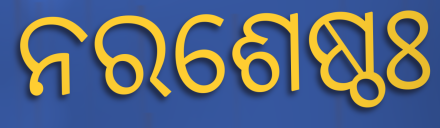
ନରଶେଷ୍ଠଃ